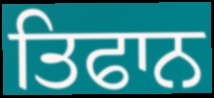
ਤਿਫਾਨ